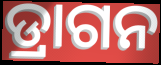
ଡ୍ରାଗନ